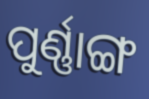
ପୁର୍ଣ୍ଣାଙ୍ଗ